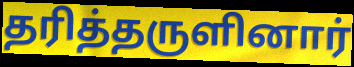
தரித்தருளினார்